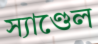
স্যাণ্ডেল